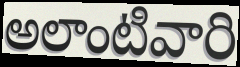
అలాంటివారి